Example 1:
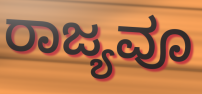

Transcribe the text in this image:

ರಾಜ್ಯವೂ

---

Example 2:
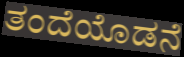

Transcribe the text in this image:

ತಂದೆಯೊಡನೆ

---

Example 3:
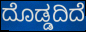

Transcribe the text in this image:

ದೊಡ್ಡದಿದೆ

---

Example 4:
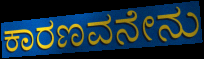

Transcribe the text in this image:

ಕಾರಣವನೇನು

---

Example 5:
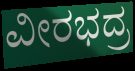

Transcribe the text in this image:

ವೀರಭದ್ರ